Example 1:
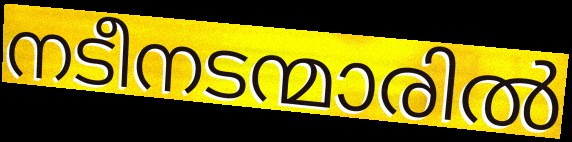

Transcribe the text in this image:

നടീനടന്മാരിൽ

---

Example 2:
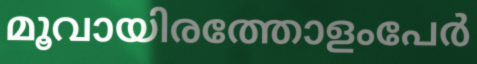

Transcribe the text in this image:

മൂവായിരത്തോളംപേർ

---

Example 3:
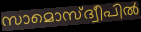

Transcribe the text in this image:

സാമൊസ്ദ്വീപിൽ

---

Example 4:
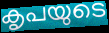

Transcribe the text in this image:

കൃപയുടെ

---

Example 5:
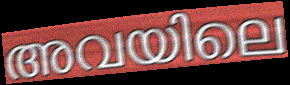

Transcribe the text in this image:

അവയിലെ